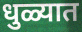
धुळ्यात